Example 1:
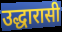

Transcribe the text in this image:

उद्धारासी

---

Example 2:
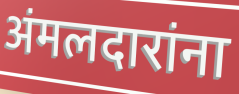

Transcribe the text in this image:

अंमलदारांना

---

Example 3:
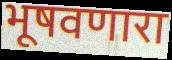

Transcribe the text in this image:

भूषवणारा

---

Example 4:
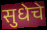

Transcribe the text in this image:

सुधेचे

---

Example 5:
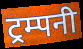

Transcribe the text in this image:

ट्रम्पनी